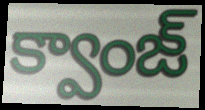
క్వాంజ్